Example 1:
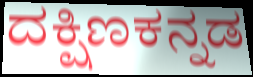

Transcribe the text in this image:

ದಕ್ಷಿಣಕನ್ನಡ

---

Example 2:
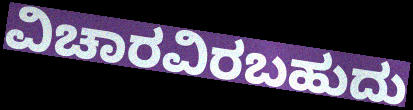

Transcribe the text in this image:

ವಿಚಾರವಿರಬಹುದು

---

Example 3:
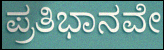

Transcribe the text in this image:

ಪ್ರತಿಭಾನವೇ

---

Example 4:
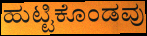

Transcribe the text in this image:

ಹುಟ್ಟಿಕೊಂಡವು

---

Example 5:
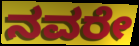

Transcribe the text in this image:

ನವರೇ